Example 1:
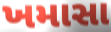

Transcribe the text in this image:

ખમાસા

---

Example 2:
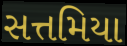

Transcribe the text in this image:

સત્તમિયા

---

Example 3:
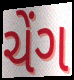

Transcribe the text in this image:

ચેંગ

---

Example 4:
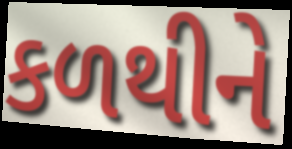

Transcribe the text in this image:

કળથીને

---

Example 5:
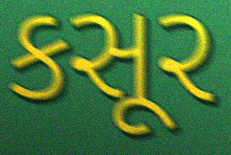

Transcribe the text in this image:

કસૂર